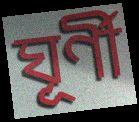
ঘূৰ্ণী